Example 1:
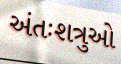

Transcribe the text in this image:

અંતઃશત્રુઓ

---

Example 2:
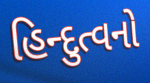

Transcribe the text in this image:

હિન્દુત્વનો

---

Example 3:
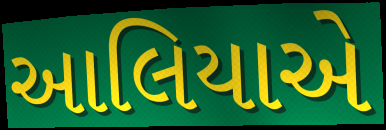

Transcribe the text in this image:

આલિયાએ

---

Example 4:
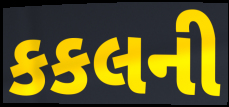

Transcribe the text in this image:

કકલની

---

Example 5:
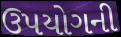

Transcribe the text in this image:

ઉપયોગની